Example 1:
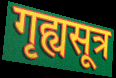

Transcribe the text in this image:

गृह्यसूत्र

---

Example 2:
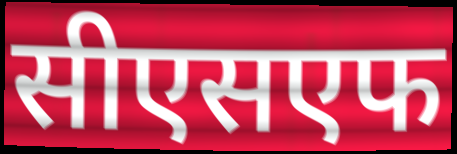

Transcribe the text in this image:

सीएसएफ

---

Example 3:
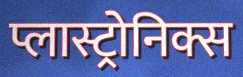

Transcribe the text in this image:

प्लास्ट्रोनिक्स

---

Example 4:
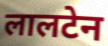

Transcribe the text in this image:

लालटेन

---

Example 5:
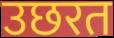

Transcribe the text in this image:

उछरत